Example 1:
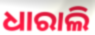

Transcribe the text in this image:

ଧାରାଲି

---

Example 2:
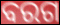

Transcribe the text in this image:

ବରଗ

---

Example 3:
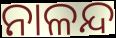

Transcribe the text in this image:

ନାଳନ୍ଦ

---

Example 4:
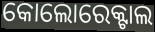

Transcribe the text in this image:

କୋଲୋରେକ୍ଟାଲ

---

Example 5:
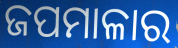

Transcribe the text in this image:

ଜପମାଳାର